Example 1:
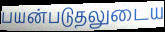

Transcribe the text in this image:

பயன்படுதலுடைய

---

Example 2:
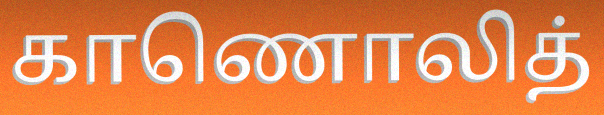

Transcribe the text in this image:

காணொலித்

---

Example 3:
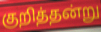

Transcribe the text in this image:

குறித்தன்று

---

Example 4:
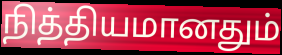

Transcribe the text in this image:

நித்தியமானதும்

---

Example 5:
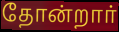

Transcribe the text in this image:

தோன்றார்